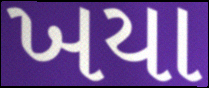
ખયા